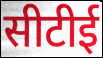
सीटीई